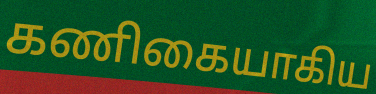
கணிகையாகிய